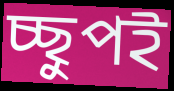
চ্ছুপই